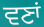
ਵਣਾਂ